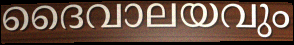
ദൈവാലയവും